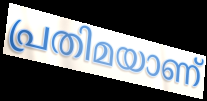
പ്രതിമയാണ്